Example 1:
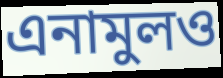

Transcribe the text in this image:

এনামুলও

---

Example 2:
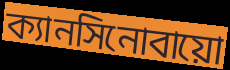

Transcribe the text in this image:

ক্যানসিনোবায়ো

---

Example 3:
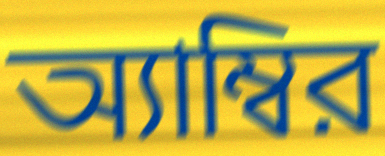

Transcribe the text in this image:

অ্যাম্বির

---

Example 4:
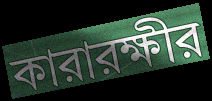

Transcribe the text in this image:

কারারক্ষীর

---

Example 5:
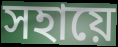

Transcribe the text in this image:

সহায়ে